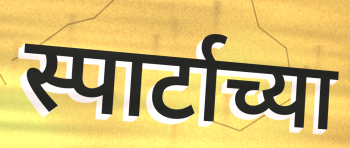
स्पार्टाच्या